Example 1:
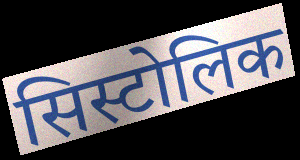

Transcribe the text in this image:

सिस्टोलिक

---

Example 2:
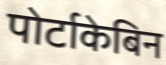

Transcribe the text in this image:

पोर्टाकेबिन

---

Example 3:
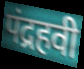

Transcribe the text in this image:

पंद्रहवी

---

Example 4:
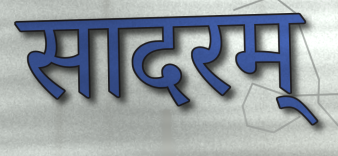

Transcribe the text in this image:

सादरम्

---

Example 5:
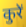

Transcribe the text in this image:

कुरें